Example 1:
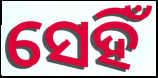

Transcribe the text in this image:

ସେହିଁ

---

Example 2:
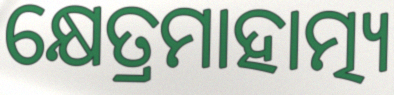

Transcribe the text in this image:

କ୍ଷେତ୍ରମାହାତ୍ମ୍ୟ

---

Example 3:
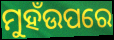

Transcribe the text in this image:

ମୁହଁଉପରେ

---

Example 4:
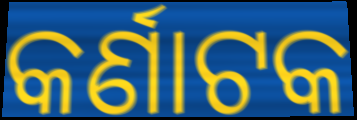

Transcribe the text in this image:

କର୍ଣାଟକ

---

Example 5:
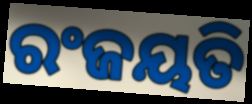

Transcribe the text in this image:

ରଂଜୟତି